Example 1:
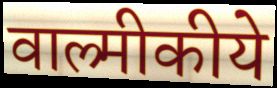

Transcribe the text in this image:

वाल्मीकीये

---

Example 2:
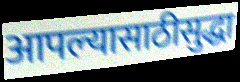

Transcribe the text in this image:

आपल्यासाठीसुद्धा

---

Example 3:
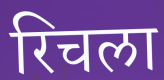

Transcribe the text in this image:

रिचला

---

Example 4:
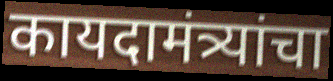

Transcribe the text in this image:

कायदामंत्र्यांचा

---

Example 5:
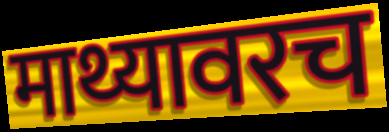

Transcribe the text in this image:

माथ्यावरच